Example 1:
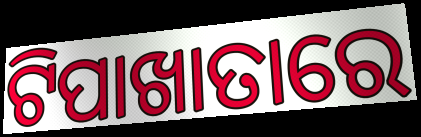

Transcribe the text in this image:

ଟିପାଖାତାରେ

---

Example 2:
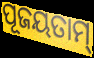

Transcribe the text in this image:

ପୂଜୟତାମ୍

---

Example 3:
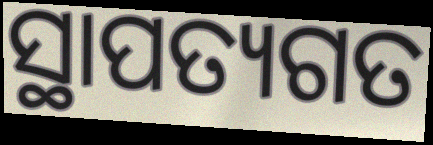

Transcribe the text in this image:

ସ୍ଥାପତ୍ୟଗତ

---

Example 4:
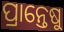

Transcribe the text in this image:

ପ୍ରାନ୍ତେଷୁ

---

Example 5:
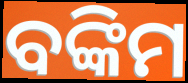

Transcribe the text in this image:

ବଙ୍କିମ